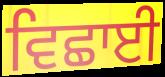
ਵਿਛਾਈ